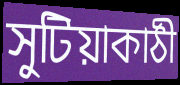
সুটিয়াকাঠী